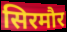
सिरमौर